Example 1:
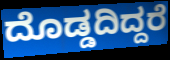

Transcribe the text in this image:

ದೊಡ್ಡದಿದ್ದರೆ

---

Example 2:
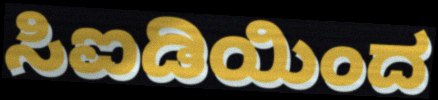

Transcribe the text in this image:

ಸಿಐಡಿಯಿಂದ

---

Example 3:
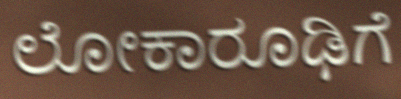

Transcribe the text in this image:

ಲೋಕಾರೂಢಿಗೆ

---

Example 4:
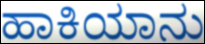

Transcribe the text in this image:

ಹಾಕಿಯಾನು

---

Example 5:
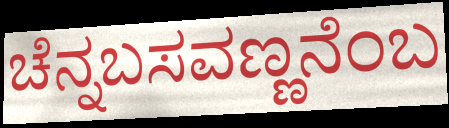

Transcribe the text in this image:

ಚೆನ್ನಬಸವಣ್ಣನೆಂಬ